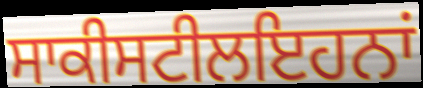
ਸਾਕੀਸਟੀਲਇਹਨਾਂ